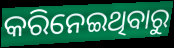
କରିନେଇଥିବାରୁ